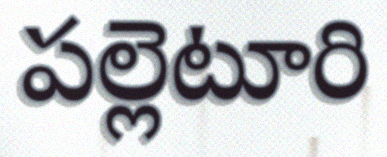
పల్లెటూరి